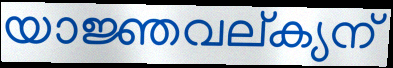
യാജ്ഞവല്ക്യന്